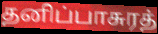
தனிப்பாசுரத்